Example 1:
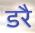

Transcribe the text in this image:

डरै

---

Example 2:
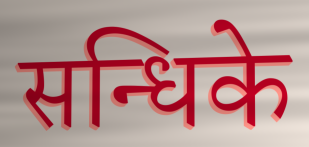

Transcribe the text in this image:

सन्धिके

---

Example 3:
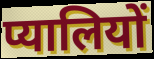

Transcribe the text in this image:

प्यालियों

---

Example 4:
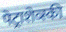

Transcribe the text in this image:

पेट्राशेव्स्की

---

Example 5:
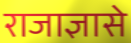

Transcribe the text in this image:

राजाज्ञासे